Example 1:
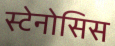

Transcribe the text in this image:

स्टेनोसिस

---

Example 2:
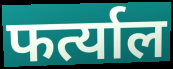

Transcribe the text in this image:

फर्त्याल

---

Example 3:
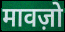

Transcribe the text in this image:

मावज़ो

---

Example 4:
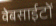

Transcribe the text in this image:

वेबसाईटों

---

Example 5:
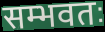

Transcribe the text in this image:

सम्भवतः